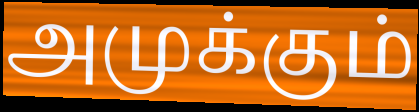
அமுக்கும்